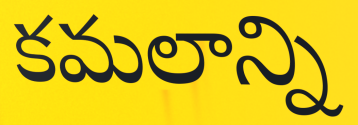
కమలాన్ని